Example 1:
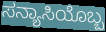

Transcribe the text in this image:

ಸನ್ಯಾಸಿಯೊಬ್ಬ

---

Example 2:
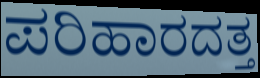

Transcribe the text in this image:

ಪರಿಹಾರದತ್ತ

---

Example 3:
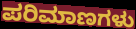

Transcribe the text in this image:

ಪರಿಮಾಣಗಳು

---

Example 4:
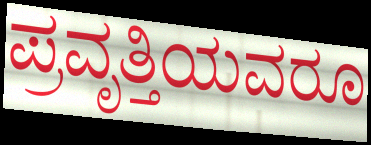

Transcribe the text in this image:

ಪ್ರವೃತ್ತಿಯವರೂ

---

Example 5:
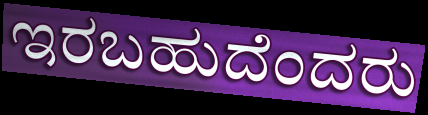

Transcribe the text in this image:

ಇರಬಹುದೆಂದರು